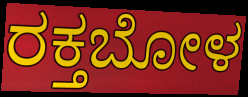
ರಕ್ತಬೋಳ